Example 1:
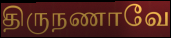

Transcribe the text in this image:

திருநணாவே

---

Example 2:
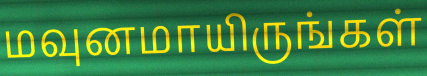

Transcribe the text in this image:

மவுனமாயிருங்கள்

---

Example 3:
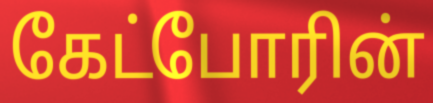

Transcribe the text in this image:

கேட்போரின்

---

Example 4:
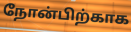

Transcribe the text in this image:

நோன்பிற்காக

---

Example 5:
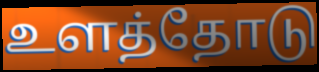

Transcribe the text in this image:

உளத்தோடு